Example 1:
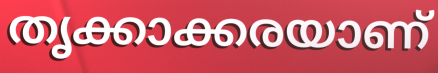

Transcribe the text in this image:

തൃക്കാക്കരയാണ്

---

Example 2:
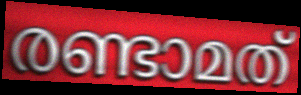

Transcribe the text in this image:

രണ്ടാമത്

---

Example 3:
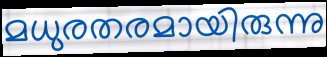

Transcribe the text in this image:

മധുരതരമായിരുന്നു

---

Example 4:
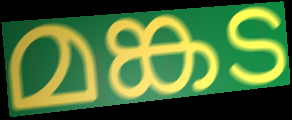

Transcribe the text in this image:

മങ്കട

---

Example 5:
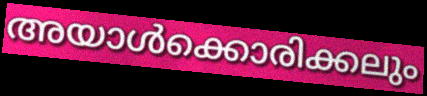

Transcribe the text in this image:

അയാൾക്കൊരിക്കലും